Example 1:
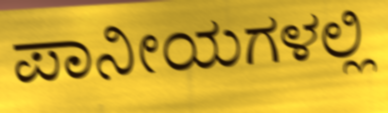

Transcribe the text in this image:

ಪಾನೀಯಗಳಲ್ಲಿ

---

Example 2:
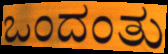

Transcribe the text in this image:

ಒಂದಂತು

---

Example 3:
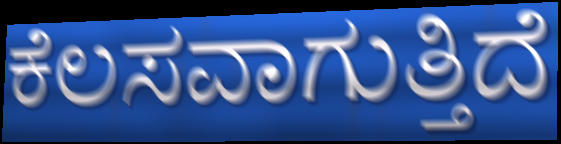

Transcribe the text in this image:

ಕೆಲಸವಾಗುತ್ತಿದೆ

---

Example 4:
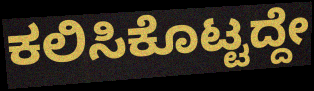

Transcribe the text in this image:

ಕಲಿಸಿಕೊಟ್ಟದ್ದೇ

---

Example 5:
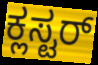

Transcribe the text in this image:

ಕ್ಲಸ್ಟರ್